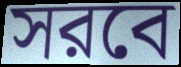
সরবে